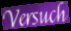
Versuch